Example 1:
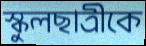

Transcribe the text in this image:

স্কুলছাত্রীকে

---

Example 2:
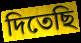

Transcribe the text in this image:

দিতেছি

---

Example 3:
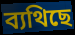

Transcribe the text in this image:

ব্যথিছে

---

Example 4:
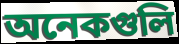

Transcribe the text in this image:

অনেকগুলি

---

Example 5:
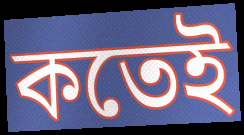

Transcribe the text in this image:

কতেই